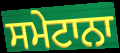
ਸਮੇਟਾਨਾ